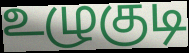
உழுகுடி